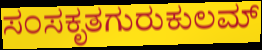
ಸಂಸಕೃತಗುರುಕುಲಮ್